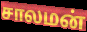
சாலமன்